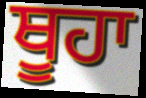
ਥੂਹਾ